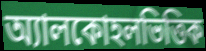
অ্যালকোহলভিত্তিক